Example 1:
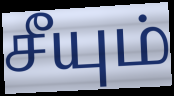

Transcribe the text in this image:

சீயும்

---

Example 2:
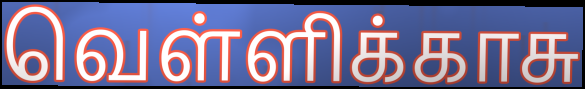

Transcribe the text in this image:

வெள்ளிக்காசு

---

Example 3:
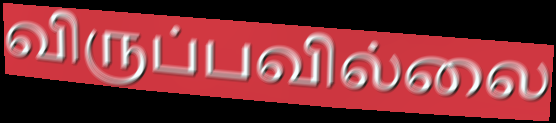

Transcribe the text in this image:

விருப்பவில்லை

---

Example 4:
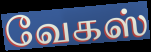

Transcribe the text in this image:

வேகஸ்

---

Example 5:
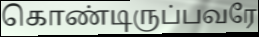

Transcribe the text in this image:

கொண்டிருப்பவரே